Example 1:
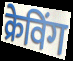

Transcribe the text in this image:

क्रेविंग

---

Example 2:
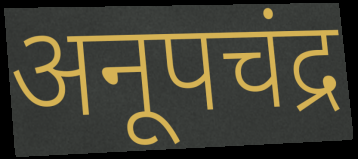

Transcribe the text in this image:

अनूपचंद्र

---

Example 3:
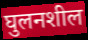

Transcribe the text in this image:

घुलनशील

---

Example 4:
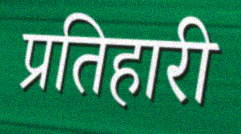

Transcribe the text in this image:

प्रतिहारी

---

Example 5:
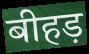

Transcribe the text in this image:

बीहड़